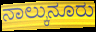
ನಾಲ್ಕುನೂರು